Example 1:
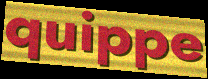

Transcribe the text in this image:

quippe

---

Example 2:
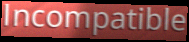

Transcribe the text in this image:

Incompatible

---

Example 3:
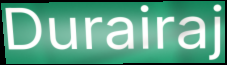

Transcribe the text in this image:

Durairaj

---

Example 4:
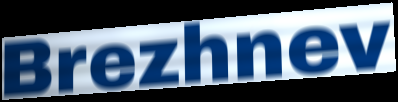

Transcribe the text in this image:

Brezhnev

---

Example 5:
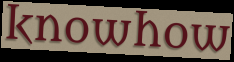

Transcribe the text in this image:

knowhow